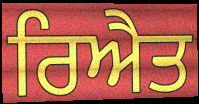
ਰਿਐਤ